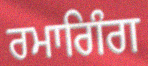
ਰਮਾਗਿੰਗ